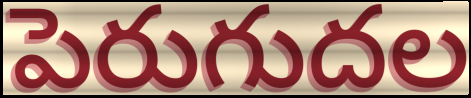
పెరుగుదల